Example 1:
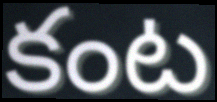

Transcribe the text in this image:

కంట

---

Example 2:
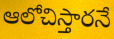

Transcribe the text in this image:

ఆలోచిస్తారనే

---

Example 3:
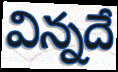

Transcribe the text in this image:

విన్నదే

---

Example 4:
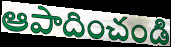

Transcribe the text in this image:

ఆపాదించండి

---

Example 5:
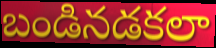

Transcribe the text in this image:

బండినడకలా